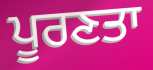
ਪੂਰਣਤਾ